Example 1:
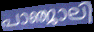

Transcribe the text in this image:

പാഞ്ജാലി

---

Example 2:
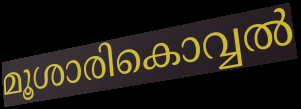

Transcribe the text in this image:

മൂശാരികൊവ്വൽ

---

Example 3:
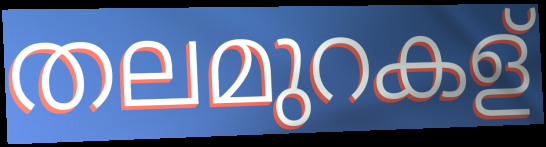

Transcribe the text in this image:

തലമുറകള്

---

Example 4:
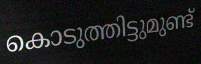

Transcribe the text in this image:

കൊടുത്തിട്ടുമുണ്ട്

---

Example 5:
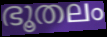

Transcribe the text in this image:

ഭൂതലം